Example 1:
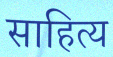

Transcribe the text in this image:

साहित्य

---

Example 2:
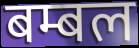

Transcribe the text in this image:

बम्बल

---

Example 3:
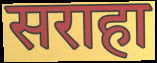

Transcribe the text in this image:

सराहा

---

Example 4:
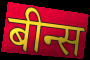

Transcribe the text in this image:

बीन्स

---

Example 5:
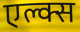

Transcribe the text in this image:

एल्क्स